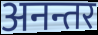
अनन्तर